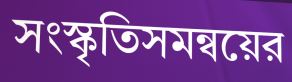
সংস্কৃতিসমন্বয়ের